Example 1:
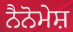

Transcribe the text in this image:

ਨੈਨੋਮੇਸ਼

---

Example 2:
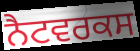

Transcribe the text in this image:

ਨੈਟਵਰਕਸ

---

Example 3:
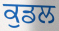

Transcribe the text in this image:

ਕੁਡਲ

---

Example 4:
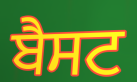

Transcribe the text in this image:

ਬੈਸਟ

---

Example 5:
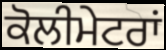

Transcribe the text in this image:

ਕੋਲੀਮੇਟਰਾਂ